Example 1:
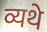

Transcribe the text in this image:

व्यथे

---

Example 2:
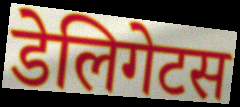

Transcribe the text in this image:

डेलिगेटस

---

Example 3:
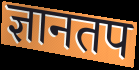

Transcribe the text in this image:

ज्ञानतप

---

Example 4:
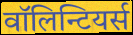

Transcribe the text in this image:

वॉलिन्टियर्स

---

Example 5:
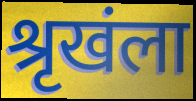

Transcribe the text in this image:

श्रृखंला